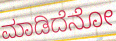
ಮಾಡಿದೆನೋ